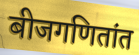
बीजगणितांत